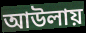
আউলায়